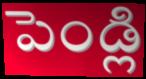
పెండ్లి